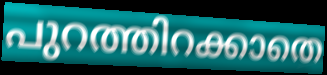
പുറത്തിറക്കാതെ